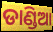
ଡାଣ୍ଡିଆ